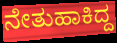
ನೇತುಹಾಕಿದ್ದ